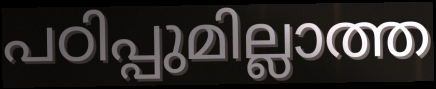
പഠിപ്പുമില്ലാത്ത